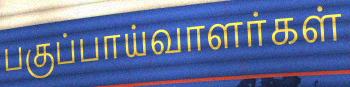
பகுப்பாய்வாளர்கள்